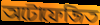
অটোফেজিত